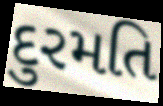
દુરમતિ